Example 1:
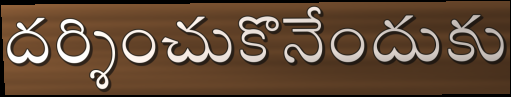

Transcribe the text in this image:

దర్శించుకొనేందుకు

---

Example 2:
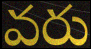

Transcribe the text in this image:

వరు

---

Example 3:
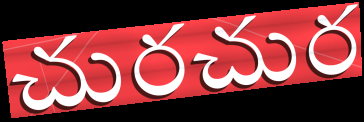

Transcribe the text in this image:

చురచుర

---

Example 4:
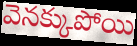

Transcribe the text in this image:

వెనక్కుపోయి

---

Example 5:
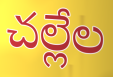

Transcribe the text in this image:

చల్లేల